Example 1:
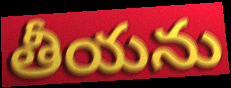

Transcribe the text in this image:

తీయను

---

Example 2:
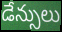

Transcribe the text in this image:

డేన్సులు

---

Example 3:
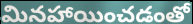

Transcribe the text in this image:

మినహాయించడంతో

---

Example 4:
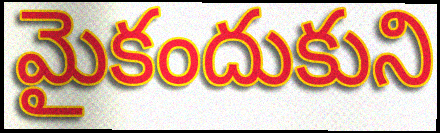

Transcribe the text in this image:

మైకందుకుని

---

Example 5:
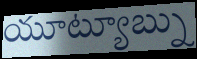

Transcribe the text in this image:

యూట్యూబ్ను